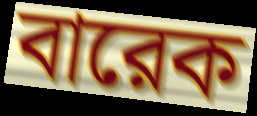
বারেক